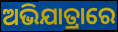
ଅଭିଯାତ୍ରାରେ